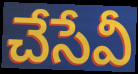
చేసేవీ